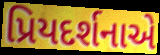
પ્રિયદર્શનાએ